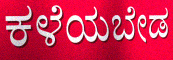
ಕಳೆಯಬೇಡ